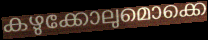
കഴുക്കോലുമൊക്കെ